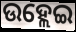
ଉହ୍ଲେଇ